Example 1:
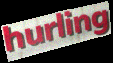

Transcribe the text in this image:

hurling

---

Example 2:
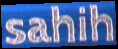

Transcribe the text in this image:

sahih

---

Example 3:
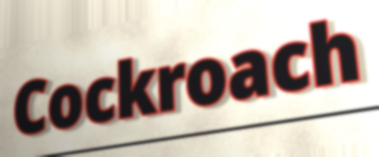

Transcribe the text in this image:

Cockroach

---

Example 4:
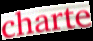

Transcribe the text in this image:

charte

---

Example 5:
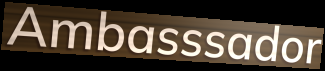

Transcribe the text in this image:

Ambasssador